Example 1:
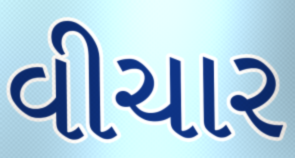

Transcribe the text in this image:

વીચાર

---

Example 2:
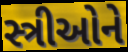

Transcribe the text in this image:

સ્ત્રીઓને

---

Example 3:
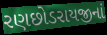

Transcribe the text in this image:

રણછોડરાયજીનાં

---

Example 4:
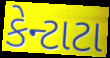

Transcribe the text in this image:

કેન્ટાટા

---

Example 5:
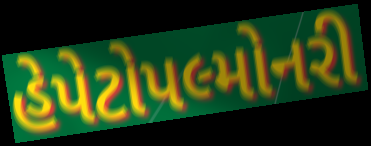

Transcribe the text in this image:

હેપેટોપલ્મોનરી